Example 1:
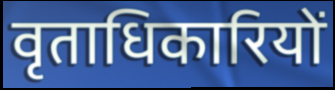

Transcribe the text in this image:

वृताधिकारियों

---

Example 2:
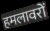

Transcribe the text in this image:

हमलावरों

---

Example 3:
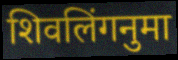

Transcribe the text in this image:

शिवलिंगनुमा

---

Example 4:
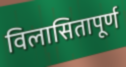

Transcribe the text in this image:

विलासितापूर्ण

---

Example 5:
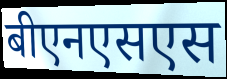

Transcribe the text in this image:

बीएनएसएस